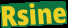
Rsine